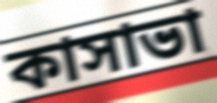
কাসাভা